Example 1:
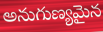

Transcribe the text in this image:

అనుగుణ్యమైన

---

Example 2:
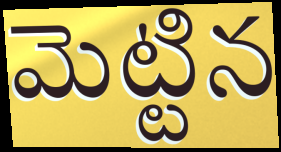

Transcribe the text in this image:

మెట్టిన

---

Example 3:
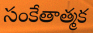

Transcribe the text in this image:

సంకేతాత్మక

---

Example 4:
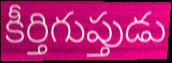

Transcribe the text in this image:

కీర్తిగుప్తుడు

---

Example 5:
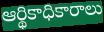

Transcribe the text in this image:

ఆర్థికాధికారాలు